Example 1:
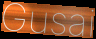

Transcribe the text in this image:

Gusai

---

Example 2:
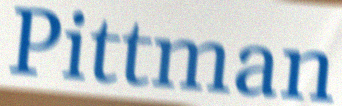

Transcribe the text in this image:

Pittman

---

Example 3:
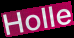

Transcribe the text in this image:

Holle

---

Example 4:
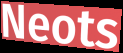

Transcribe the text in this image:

Neots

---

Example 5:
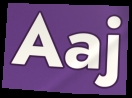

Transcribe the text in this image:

Aaj